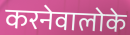
करनेवालोके